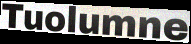
Tuolumne